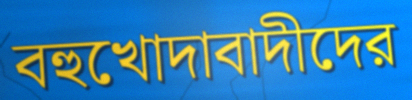
বহুখোদাবাদীদের